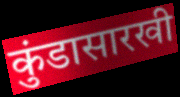
कुंडासारखी